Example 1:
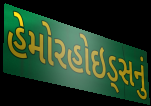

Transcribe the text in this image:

હેમોરહોઇડ્સનું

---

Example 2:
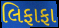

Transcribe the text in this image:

લિફાફા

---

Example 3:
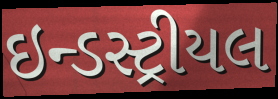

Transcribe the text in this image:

ઇન્ડસ્ટ્રીયલ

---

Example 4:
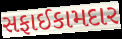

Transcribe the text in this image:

સફાઈકામદાર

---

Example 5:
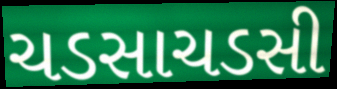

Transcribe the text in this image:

ચડસાચડસી